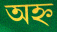
অহ্ন